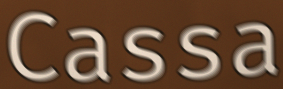
Cassa